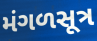
મંગળસૂત્ર